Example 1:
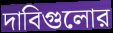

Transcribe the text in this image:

দাবিগুলোর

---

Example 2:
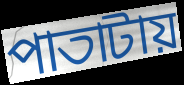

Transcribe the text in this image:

পাতাটায়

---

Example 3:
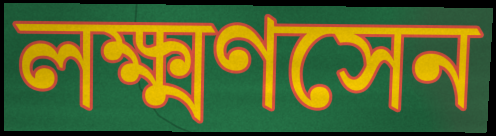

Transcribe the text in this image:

লক্ষ্মণসেন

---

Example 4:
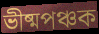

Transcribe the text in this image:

ভীষ্মপঞ্চক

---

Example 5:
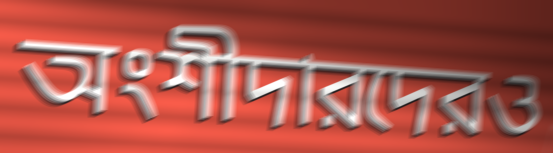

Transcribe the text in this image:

অংশীদারদেরও